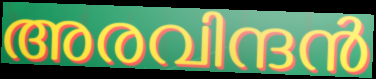
അരവിന്ദൻ